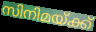
സിനിമയ്ക്ക്